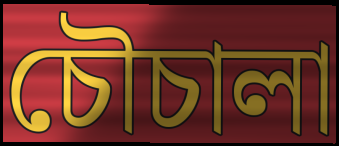
চৌচালা